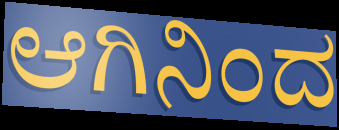
ಆಗಿನಿಂದ